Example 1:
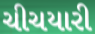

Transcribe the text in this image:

ચીચયારી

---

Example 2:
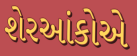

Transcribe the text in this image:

શેરઆંકોએ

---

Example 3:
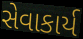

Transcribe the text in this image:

સેવાકાર્ય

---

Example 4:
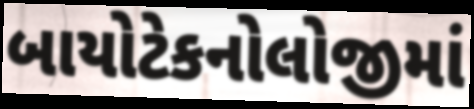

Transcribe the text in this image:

બાયોટેકનોલોજીમાં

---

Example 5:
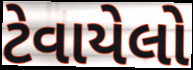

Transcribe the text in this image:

ટેવાયેલો